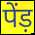
पेंड़